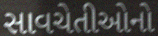
સાવચેતીઓનો